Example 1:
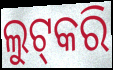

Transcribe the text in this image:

ଲୁଟ୍‍କରି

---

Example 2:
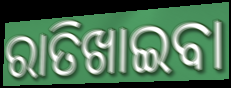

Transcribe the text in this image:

ରାତିଖାଇବା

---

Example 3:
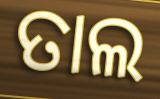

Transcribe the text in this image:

ତାଲ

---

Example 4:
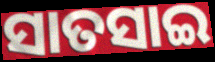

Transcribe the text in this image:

ସାତସାଇ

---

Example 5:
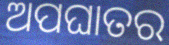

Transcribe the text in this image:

ଅପଘାତର